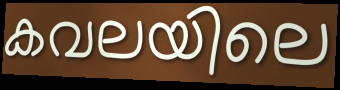
കവലയിലെ